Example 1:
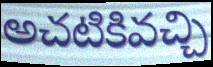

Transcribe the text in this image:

అచటికివచ్చి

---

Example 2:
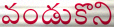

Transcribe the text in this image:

వండుకొని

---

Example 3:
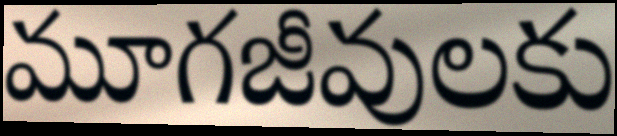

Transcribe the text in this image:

మూగజీవులకు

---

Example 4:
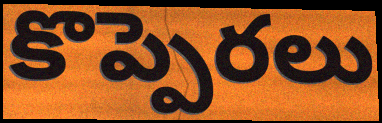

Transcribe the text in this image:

కొప్పెరలు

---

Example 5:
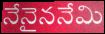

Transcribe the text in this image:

నేనైననేమి